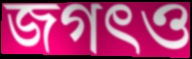
জগৎও